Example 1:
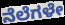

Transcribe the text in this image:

ನೆಲೆಗಳೇ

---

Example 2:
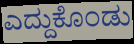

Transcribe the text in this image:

ಎದ್ದುಕೊಂಡು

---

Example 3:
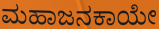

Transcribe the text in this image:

ಮಹಾಜನಕಾಯೇ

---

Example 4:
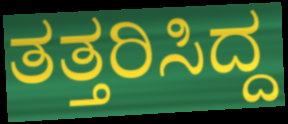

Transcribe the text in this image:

ತತ್ತರಿಸಿದ್ದ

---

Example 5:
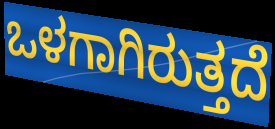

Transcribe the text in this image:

ಒಳಗಾಗಿರುತ್ತದೆ